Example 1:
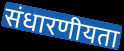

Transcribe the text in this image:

संधारणीयता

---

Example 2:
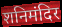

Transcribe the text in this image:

शनिमंदिर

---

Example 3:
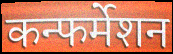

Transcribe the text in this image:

कन्फर्मेशन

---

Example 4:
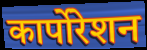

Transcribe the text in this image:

कार्पोरेशन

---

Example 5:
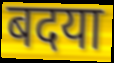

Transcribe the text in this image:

बदया